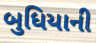
બુધિયાની